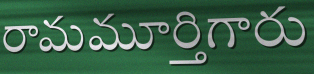
రామమూర్తిగారు